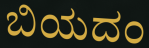
ಬಿಯದಂ